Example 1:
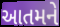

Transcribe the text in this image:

આતમને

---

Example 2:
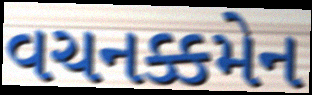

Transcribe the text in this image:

વચનક્કમેન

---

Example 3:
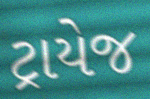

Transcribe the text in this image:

ટ્રાયેજ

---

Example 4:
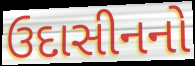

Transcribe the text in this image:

ઉદાસીનનો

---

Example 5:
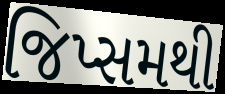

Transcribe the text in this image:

જિપ્સમથી